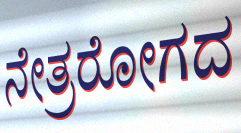
ನೇತ್ರರೋಗದ